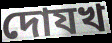
দোযখ